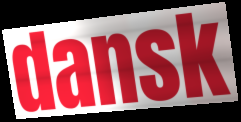
dansk